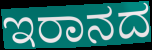
ಇರಾನದ